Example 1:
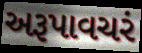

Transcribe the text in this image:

અરૂપાવચરં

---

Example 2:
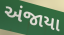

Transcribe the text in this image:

અંજાયા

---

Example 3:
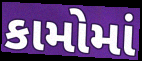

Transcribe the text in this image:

કામોમાં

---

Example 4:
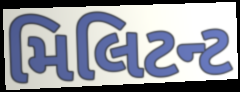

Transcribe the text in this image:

મિલિટન્ટ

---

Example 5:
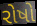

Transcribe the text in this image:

રોષો